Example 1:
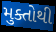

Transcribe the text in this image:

મુક્તોથી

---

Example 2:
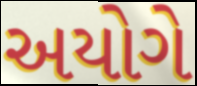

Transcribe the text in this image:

અયોગે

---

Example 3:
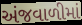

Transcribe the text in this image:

અંજવાળીમાં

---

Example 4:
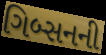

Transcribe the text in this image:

ગિબ્સનની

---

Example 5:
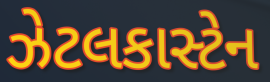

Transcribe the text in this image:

ઝેટલકાસ્ટેન